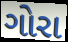
ગોરા